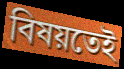
বিষয়তেই